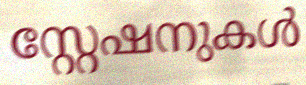
സ്റ്റേഷനുകൾ